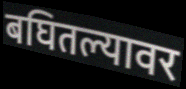
बघितल्यावर